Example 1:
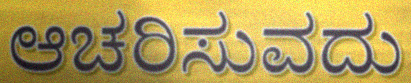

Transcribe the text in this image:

ಆಚರಿಸುವದು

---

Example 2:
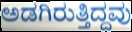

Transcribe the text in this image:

ಅಡಗಿರುತ್ತಿದ್ದವು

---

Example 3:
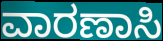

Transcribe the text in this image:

ವಾರಣಾಸಿ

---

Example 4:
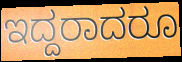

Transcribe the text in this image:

ಇದ್ದರಾದರೂ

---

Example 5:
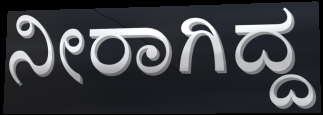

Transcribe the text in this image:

ನೀರಾಗಿದ್ದ